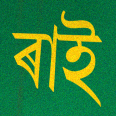
ৰাই